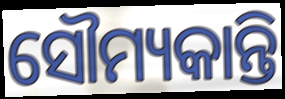
ସୌମ୍ୟକାନ୍ତି